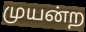
முயன்ற